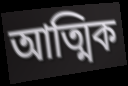
আত্মিক